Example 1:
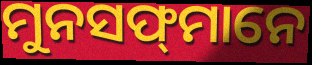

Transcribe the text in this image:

ମୁନସଫ୍‍ମାନେ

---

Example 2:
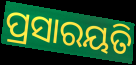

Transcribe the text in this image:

ପ୍ରସାରୟତି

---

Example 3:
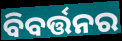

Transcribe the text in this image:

ବିବର୍ତ୍ତନର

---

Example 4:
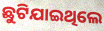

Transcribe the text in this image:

ଛୁଟିଯାଇଥିଲେ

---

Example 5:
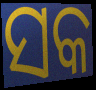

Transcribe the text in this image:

ସକ